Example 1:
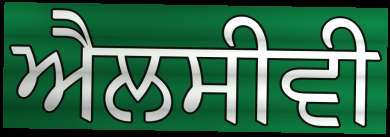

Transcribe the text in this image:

ਐਲਸੀਵੀ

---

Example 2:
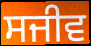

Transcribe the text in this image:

ਸਜੀਵ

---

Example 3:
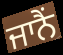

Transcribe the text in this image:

ਜਾਨੈਂ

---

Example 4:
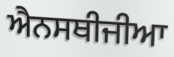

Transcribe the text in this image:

ਐਨਸਥੀਜੀਆ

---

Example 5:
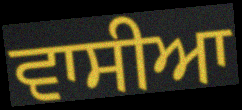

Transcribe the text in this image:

ਵਾਸੀਆ